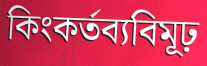
কিংকর্তব্যবিমূঢ়